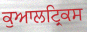
ਕੁਆਲਟ੍ਰਿਕਸ